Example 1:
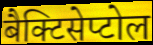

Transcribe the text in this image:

बैक्टिसेप्टोल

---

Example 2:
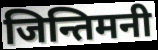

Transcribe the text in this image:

जिन्तिमनी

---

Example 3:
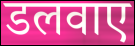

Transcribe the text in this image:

डलवाए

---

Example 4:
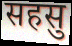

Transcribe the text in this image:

सहसु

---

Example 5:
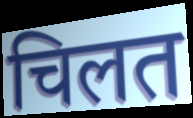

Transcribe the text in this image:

चिलत